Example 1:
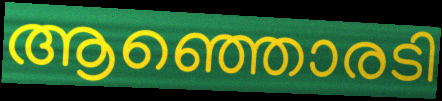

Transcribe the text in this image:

ആഞ്ഞൊരടി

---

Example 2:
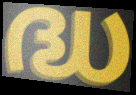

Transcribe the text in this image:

ദ്ധ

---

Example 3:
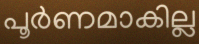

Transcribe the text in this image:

പൂർണമാകില്ല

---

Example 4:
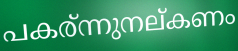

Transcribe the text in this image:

പകര്ന്നുനല്കണം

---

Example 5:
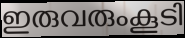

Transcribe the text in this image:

ഇരുവരുംകൂടി